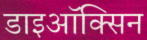
डाइऑक्सिन